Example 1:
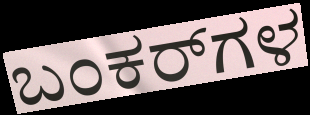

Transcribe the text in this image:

ಬಂಕರ್‌ಗಳ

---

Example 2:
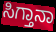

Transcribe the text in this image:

ಸಿಗ್ತಾನಾ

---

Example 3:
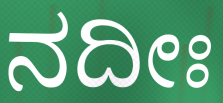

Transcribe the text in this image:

ನದೀಃ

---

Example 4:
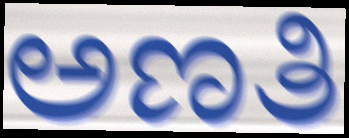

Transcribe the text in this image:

ಅಣತಿ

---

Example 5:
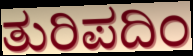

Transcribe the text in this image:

ತುರಿಪದಿಂ